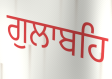
ਗੁਲਾਬਹਿ